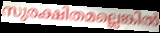
സുരക്ഷിതമല്ലെങ്കിൽ